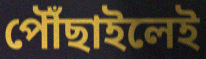
পৌঁছাইলেই